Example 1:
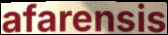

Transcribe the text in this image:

afarensis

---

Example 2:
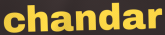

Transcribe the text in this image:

chandar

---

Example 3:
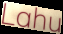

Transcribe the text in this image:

Lahu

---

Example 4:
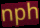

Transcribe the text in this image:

nph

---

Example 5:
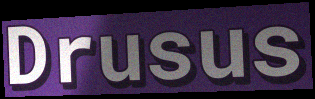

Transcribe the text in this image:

Drusus